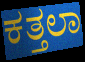
ಕತ್ತಲಾ